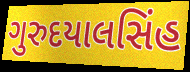
ગુરુદયાલસિંહ